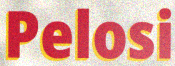
Pelosi